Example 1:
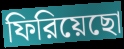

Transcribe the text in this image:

ফিরিয়েছো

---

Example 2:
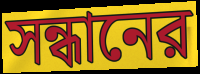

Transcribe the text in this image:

সন্ধানের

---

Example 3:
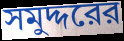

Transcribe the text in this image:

সমুদ্দরের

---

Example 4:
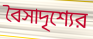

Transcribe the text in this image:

বৈসাদৃশ্যের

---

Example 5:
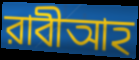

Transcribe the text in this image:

রাবীআহ